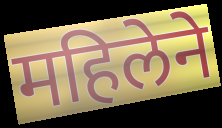
महिलेने